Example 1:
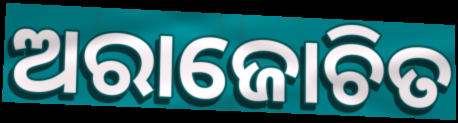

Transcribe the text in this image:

ଅରାଜୋଚିତ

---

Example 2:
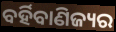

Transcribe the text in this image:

ବର୍ହିବାଣିଜ୍ୟର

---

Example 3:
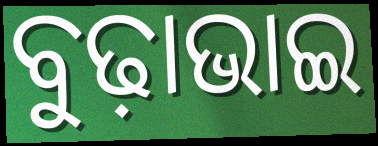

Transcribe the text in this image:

ବୁଢ଼ାଭାଇ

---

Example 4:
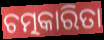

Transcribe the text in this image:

ଚତ୍ମକାରିତା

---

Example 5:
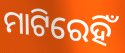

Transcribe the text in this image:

ମାଟିରେହିଁ